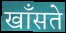
खाँसते